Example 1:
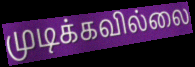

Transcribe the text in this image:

முடிக்கவில்லை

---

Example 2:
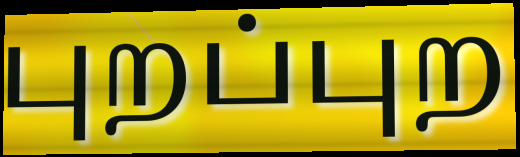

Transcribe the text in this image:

புறப்புற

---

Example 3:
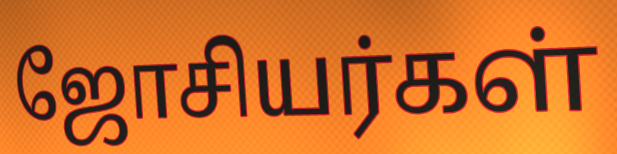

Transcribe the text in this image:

ஜோசியர்கள்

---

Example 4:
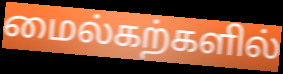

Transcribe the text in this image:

மைல்கற்களில்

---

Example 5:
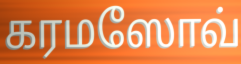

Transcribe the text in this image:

கரமஸோவ்